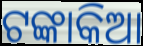
ଟଙ୍କାକିଆ